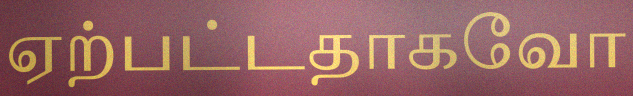
ஏற்பட்டதாகவோ